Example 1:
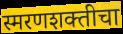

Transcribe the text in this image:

स्मरणशक्तीचा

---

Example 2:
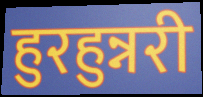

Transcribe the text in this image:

हुरहुन्नरी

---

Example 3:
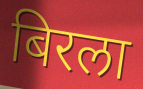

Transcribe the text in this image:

बिरला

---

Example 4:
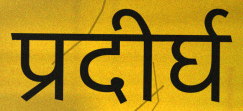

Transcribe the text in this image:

प्रदीर्घ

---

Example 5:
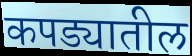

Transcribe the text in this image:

कपड्यातील